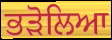
ਭੜੋਲਿਆ